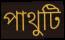
পাথুটি